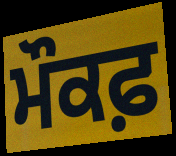
ਮੌਕਫ਼